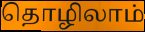
தொழிலாம்